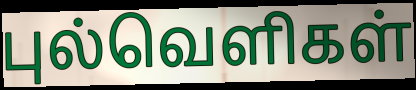
புல்வெளிகள்